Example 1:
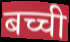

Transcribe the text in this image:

बच्ची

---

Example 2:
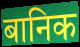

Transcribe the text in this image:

बानिक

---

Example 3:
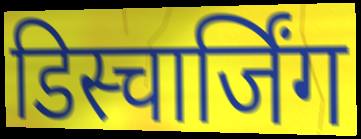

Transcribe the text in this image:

डिस्चार्जिंग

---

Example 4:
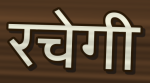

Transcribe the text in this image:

रचेगी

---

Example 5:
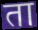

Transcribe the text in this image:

ता